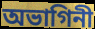
অভাগিনী